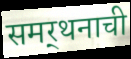
समर्थनाची